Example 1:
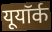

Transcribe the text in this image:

यूयॉर्क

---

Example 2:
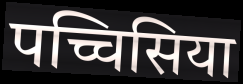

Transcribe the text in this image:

पच्चिसिया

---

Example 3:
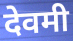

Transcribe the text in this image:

देवमी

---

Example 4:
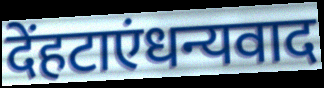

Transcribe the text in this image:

देंहटाएंधन्यवाद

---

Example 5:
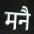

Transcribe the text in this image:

मनै